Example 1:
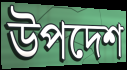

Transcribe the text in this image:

উপদেশ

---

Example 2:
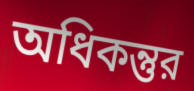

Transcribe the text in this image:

অধিকন্তুর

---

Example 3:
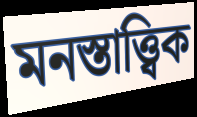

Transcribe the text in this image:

মনস্তাত্ত্বিক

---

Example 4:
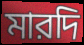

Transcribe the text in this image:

মারদি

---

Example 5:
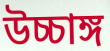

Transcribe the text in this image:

উচ্চাঙ্গ